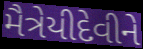
મૈત્રેયીદેવીને